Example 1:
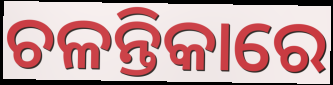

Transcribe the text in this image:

ଚଳନ୍ତିକାରେ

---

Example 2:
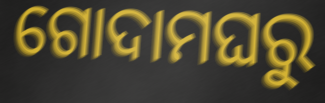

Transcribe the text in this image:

ଗୋଦାମଘରୁ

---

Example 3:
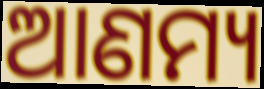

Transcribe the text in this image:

ଆଣମ୍ୟ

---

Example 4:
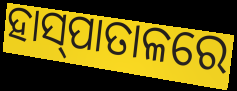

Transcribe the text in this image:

ହାସ୍‍ପାତାଳରେ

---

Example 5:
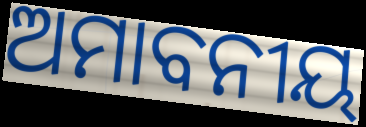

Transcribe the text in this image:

ଅମାବନୀୟ